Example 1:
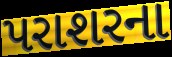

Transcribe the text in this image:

પરાશરના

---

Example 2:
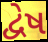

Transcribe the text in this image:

દ્વેષ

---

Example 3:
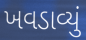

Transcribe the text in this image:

ખવડાવ્યું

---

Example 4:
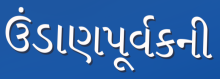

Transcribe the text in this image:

ઉંડાણપૂર્વકની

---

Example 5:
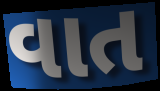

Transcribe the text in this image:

વાત